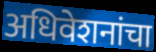
अधिवेशनांचा